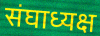
संघाध्यक्ष